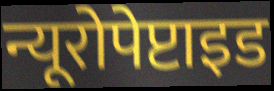
न्यूरोपेप्टाइड